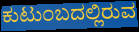
ಕುಟುಂಬದಲ್ಲಿರುವ